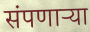
संपणाऱ्या